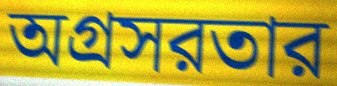
অগ্রসরতার